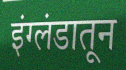
इंग्लंडातून